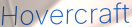
Hovercraft